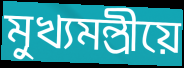
মুখ্যমন্ত্ৰীয়ে